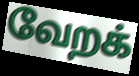
வேறக்